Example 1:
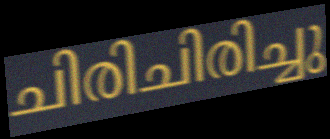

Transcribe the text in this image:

ചിരിചിരിച്ചു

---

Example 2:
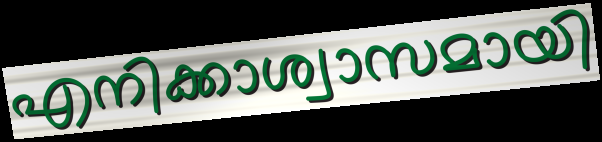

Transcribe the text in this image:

എനിക്കാശ്വാസമായി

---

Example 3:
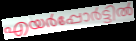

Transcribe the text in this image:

എയർപ്പോർട്ടിൽ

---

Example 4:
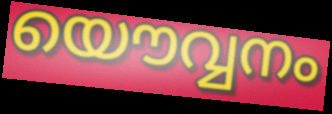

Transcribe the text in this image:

യൌവ്വനം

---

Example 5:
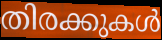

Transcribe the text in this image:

തിരക്കുകൾ